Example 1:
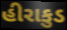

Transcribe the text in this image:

હીરાકુડ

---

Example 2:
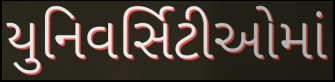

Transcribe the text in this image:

યુનિવર્સિટીઓમાં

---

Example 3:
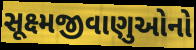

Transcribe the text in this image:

સૂક્ષ્મજીવાણુઓનો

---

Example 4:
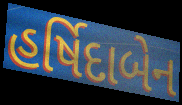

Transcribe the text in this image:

હર્ષિદાબેન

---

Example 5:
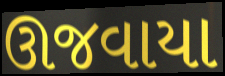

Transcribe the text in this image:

ઊજવાયા